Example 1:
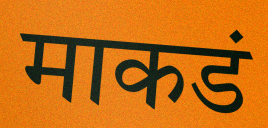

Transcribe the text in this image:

माकडं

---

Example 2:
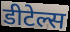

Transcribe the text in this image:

डीटेल्स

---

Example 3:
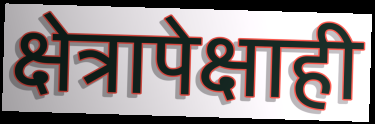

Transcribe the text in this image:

क्षेत्रापेक्षाही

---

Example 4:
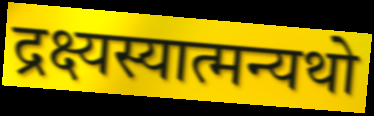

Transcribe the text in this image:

द्रक्ष्यस्यात्मन्यथो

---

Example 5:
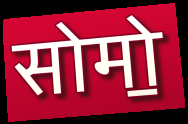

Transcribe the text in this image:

सोमो॒